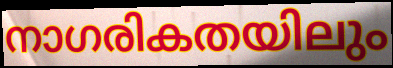
നാഗരികതയിലും